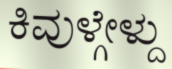
ಕಿವುಳ್ಗೇಳ್ದು